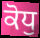
ਕੋਧੁ